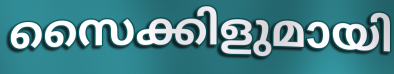
സൈക്കിളുമായി